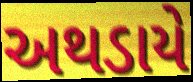
અથડાયે